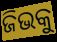
ଜିଭକୁ